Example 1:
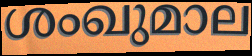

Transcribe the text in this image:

ശംഖുമാല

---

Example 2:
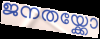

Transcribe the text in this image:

ജനതയ്ക്കോ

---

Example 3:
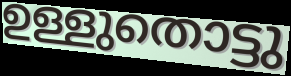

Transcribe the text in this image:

ഉള്ളുതൊട്ടു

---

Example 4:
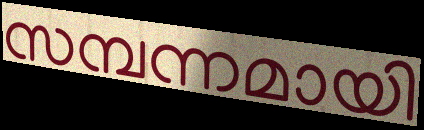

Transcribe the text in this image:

സമ്പന്നമായി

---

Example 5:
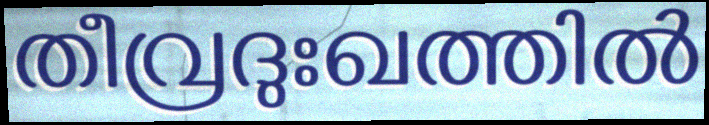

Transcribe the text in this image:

തീവ്രദുഃഖത്തിൽ